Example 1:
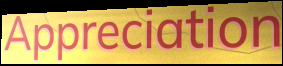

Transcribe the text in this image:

Appreciation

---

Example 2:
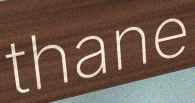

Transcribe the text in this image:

thane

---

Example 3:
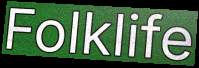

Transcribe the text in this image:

Folklife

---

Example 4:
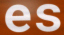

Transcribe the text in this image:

es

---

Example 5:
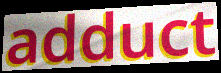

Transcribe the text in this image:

adduct